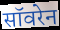
सॉवरेन